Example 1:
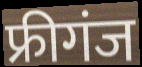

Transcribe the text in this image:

फ्रीगंज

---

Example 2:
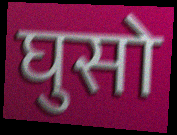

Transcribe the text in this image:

घुसो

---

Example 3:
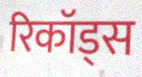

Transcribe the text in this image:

रिकॉड्स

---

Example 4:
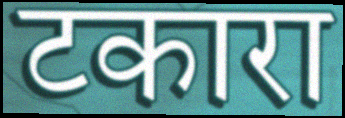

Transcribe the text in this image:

टकारा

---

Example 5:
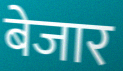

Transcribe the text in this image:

बेजार